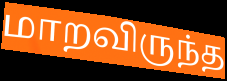
மாறவிருந்த